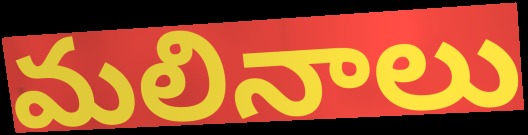
మలినాలు